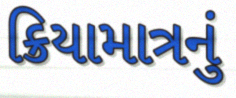
ક્રિયામાત્રનું